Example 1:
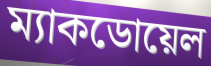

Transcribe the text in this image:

ম্যাকডোয়েল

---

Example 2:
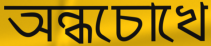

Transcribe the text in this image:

অন্ধচোখে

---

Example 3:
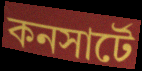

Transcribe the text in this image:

কনসার্টে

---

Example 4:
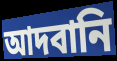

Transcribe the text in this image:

আদবানি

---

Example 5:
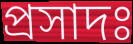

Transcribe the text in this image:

প্রসাদঃ